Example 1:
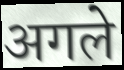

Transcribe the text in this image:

अगले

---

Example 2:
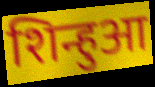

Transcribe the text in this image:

शिन्हुआ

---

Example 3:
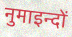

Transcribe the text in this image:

नुमाइन्दों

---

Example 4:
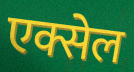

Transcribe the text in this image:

एक्सेल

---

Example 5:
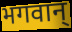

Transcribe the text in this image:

भगवान्